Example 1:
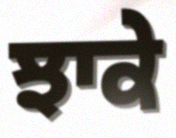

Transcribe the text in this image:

ਝਾਕੇ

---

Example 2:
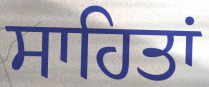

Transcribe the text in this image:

ਸਾਹਿਤਾਂ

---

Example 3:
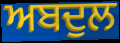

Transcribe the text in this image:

ਅਬਦੁਲ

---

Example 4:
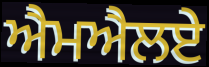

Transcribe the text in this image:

ਐਮਐਲਏ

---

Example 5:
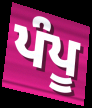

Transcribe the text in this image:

ਪੰਪੂ